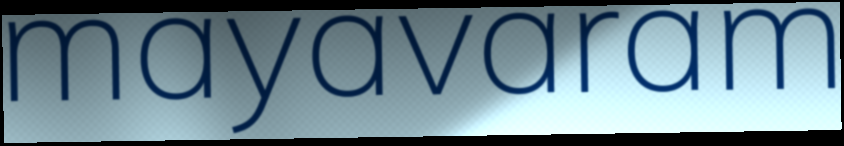
mayavaram